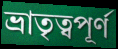
ভ্ৰাতৃত্বপূৰ্ণ